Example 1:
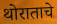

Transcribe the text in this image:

थोराताचे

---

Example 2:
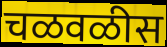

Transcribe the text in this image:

चळवळीस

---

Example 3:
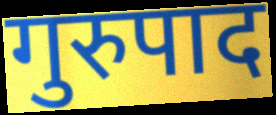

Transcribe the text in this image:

गुरुपाद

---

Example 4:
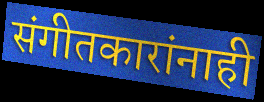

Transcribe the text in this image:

संगीतकारांनाही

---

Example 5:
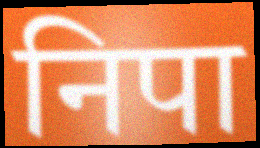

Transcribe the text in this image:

निपा